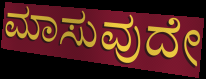
ಮಾಸುವುದೇ